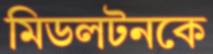
মিডলটনকে